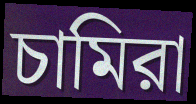
চামিরা